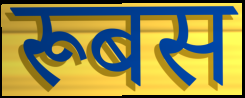
रूबस